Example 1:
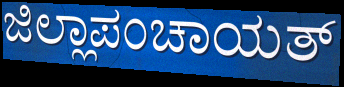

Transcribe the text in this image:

ಜಿಲ್ಲಾಪಂಚಾಯತ್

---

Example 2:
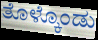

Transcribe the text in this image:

ತೊಳ್ಕೊಂಡು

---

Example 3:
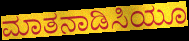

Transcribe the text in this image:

ಮಾತನಾಡಿಸಿಯೂ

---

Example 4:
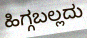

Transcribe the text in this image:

ಹಿಗ್ಗಬಲ್ಲದು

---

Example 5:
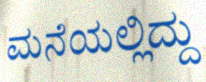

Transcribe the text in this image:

ಮನೆಯಲ್ಲಿದ್ದು